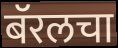
बॅरलचा